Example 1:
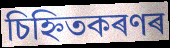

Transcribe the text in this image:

চিহ্নিতকৰণৰ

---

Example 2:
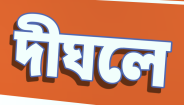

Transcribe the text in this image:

দীঘলে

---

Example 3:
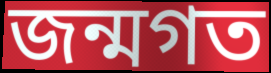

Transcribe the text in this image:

জন্মগত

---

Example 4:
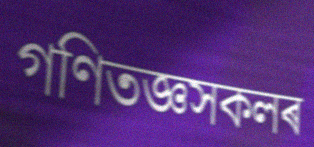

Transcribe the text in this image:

গণিতজ্ঞসকলৰ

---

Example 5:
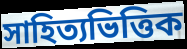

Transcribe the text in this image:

সাহিত্যভিত্তিক